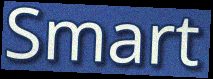
Smart